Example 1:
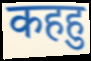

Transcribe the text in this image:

कहहु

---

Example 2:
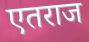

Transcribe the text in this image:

एतराज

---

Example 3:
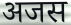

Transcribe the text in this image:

अजस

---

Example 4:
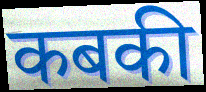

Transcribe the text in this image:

कबकी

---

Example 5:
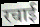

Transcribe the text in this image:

रचाई